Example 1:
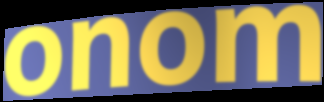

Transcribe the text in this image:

onom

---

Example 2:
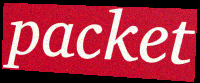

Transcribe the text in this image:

packet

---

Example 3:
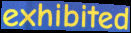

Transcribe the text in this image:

exhibited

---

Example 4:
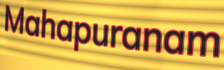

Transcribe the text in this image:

Mahapuranam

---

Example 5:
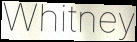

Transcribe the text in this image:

Whitney